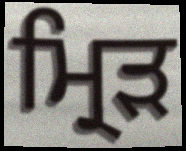
ਮ੍ਰਿੜ